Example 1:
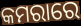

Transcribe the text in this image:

କମରାରେ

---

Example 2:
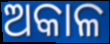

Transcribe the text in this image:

ଅକାଳ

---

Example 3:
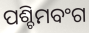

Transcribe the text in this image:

ପଶ୍ଚିମବଂଗ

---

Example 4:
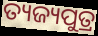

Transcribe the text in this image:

ତ୍ୟଜ୍ୟପୁତ୍ର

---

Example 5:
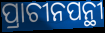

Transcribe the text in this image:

ପ୍ରାଚୀନପନ୍ଥୀ